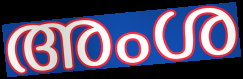
അംശ